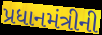
પ્રધાનમંત્રીની